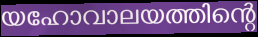
യഹോവാലയത്തിന്റെ